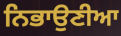
ਨਿਭਾਉਣੀਆ